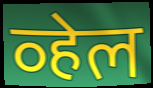
व्हेल